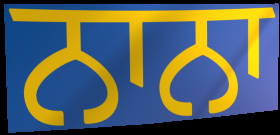
ਨਾਨਾ